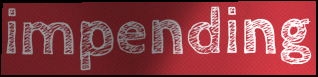
impending